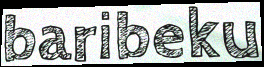
baribeku